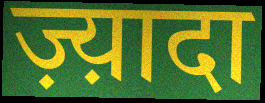
ज़्य़ादा